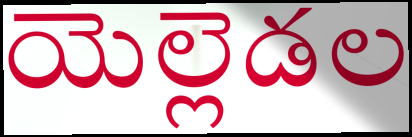
యెల్లెడల